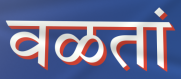
वळतां